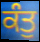
ਕੰਤੁ